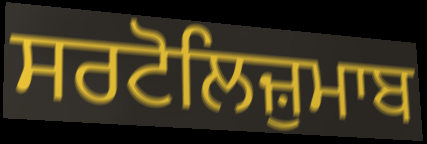
ਸਰਟੋਲਿਜ਼ੁਮਾਬ